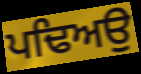
ਪਢਿਅਉ